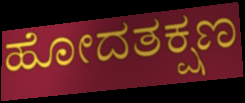
ಹೋದತಕ್ಷಣ